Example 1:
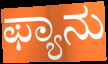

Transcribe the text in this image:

ಫ್ಯಾನು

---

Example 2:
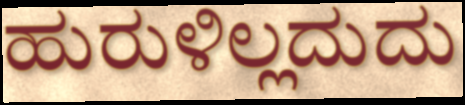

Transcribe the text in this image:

ಹುರುಳಿಲ್ಲದುದು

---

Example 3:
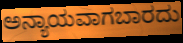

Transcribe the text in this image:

ಅನ್ಯಾಯವಾಗಬಾರದು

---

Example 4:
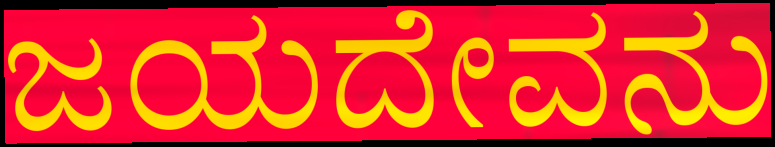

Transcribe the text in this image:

ಜಯದೇವನು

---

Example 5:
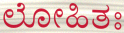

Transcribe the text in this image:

ಲೋಹಿತಃ